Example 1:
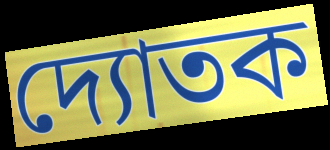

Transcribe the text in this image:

দ্যোতক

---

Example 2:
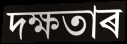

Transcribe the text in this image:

দক্ষতাৰ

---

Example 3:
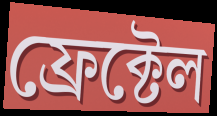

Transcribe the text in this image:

ফ্ৰেক্টেল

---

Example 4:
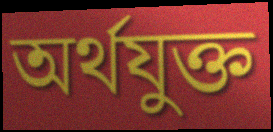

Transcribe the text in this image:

অৰ্থযুক্ত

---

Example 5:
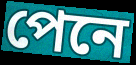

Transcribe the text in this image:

পেনে